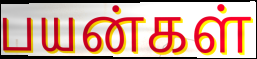
பயன்கள்